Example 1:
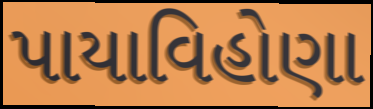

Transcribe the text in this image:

પાયાવિહોણા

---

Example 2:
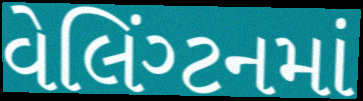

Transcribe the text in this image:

વેલિંગ્ટનમાં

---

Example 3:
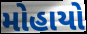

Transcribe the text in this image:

મોહાયો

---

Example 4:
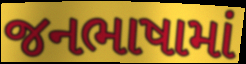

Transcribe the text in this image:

જનભાષામાં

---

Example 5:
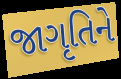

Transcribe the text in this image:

જાગૃતિને